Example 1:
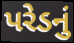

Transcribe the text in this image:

પરેડનું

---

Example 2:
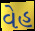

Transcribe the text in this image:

વેહ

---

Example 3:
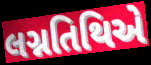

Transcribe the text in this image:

લગ્નતિથિએ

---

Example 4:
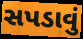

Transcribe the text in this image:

સપડાવું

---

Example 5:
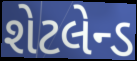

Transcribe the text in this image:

શેટલેન્ડ